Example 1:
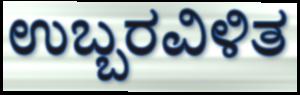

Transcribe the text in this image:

ಉಬ್ಬರವಿಳಿತ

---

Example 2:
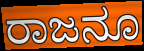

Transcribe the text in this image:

ರಾಜನೂ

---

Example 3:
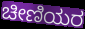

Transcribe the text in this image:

ಚೀಣಿಯರ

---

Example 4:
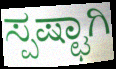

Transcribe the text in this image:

ಸ್ಪಷ್ಟಾಗಿ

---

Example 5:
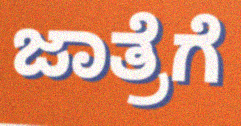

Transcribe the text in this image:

ಜಾತ್ರೆಗೆ